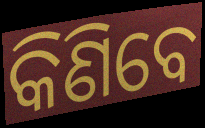
କିଣିବେ